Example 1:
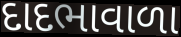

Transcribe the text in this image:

દાદભાવાળા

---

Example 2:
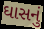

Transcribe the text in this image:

ઘાસનું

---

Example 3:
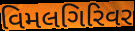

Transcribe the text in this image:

વિમલગિરિવર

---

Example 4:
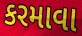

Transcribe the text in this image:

કરમાવા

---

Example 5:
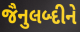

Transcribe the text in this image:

જૈનુલબ્દીને